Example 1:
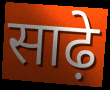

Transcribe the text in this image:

साढ़े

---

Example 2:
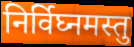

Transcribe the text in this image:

निर्विघ्नमस्तु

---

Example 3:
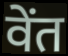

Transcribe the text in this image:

वेंत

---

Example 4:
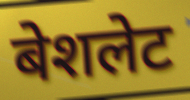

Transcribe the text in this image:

बेशलेट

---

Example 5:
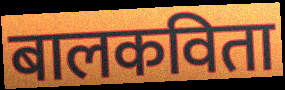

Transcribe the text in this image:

बालकविता